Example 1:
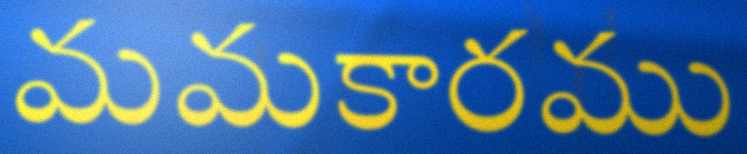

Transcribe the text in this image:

మమకారము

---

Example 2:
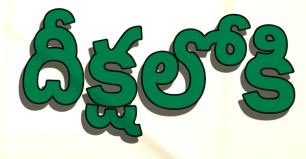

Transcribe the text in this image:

దీక్షలోకి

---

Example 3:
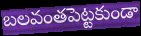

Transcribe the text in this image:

బలవంతపెట్టకుండా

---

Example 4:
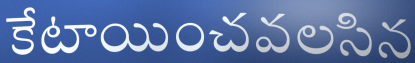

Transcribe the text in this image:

కేటాయించవలసిన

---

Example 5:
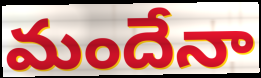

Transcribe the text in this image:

మందేనా